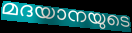
മദയാനയുടെ